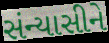
સંન્યાસીને